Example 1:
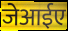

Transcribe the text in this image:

जेआईए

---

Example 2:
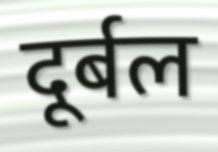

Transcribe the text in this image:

दूर्बल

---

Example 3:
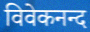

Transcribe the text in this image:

विवेकनन्द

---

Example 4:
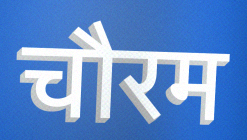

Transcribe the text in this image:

चौरम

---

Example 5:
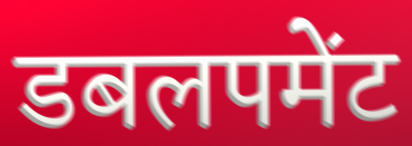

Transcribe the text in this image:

डबलपमेंट